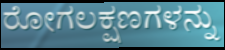
ರೋಗಲಕ್ಷಣಗಳನ್ನು